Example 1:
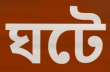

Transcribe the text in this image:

ঘটে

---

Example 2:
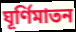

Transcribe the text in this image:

ঘূর্ণিমাতন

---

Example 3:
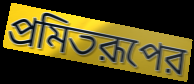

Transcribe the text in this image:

প্রমিতরূপের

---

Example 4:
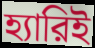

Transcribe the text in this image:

হ্যারিই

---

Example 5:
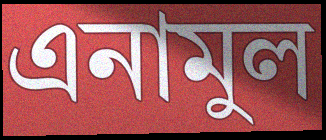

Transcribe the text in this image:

এনামুল